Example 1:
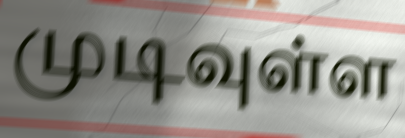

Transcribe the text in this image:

முடிவுள்ள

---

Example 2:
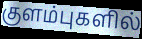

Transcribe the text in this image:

குளம்புகளில்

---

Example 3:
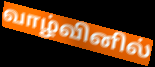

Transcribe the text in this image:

வாழ்வினில்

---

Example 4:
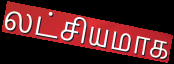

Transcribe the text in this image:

லட்சியமாக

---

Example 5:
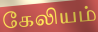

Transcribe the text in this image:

கேலியம்